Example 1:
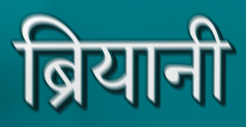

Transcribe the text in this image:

ब्रियानी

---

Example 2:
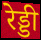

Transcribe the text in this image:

रेड्डी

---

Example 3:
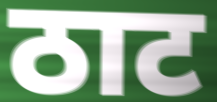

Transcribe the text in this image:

ठाट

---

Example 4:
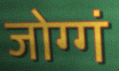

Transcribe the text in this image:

जोग्गं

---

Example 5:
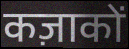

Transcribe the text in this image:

कज़ाकों